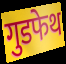
गुडफेथ